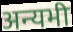
अन्यभी